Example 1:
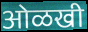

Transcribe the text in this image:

ओळखी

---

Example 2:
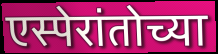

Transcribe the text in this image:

एस्पेरांतोच्या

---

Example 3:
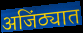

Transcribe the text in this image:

अजिंठ्यात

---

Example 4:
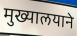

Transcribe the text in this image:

मुख्यालयाने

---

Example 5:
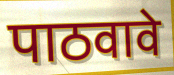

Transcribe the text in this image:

पाठवावे